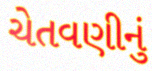
ચેતવણીનું